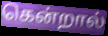
கென்றால்